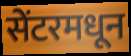
सेंटरमधून